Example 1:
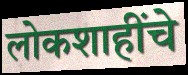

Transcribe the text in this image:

लोकशाहींचे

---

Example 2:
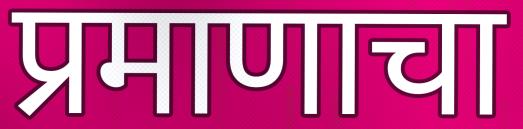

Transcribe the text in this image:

प्रमाणाचा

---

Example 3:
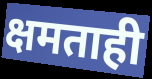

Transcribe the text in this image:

क्षमताही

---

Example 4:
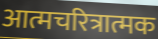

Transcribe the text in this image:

आत्मचरित्रात्मक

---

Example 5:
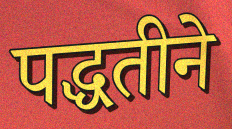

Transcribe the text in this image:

पद्धतीने